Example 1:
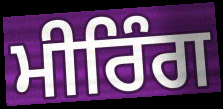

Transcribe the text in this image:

ਮੀਰਿੰਗ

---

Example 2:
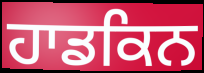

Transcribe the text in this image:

ਹਾਡਕਿਨ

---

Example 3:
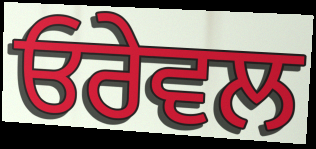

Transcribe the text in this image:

ਓਰੇਵਲ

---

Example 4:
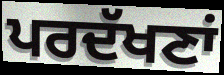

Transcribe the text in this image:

ਪਰਦੱਖਣਾਂ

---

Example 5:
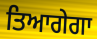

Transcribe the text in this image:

ਤਿਆਗੇਗਾ